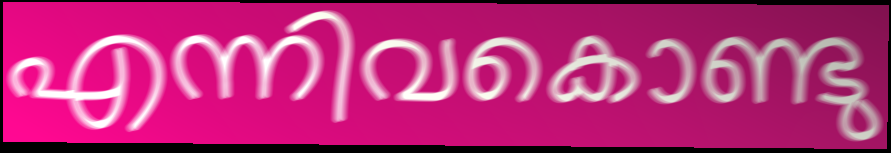
എന്നിവകൊണ്ടു